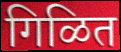
गिळित